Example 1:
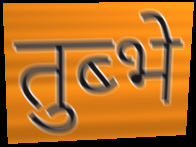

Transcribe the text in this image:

तुब्भे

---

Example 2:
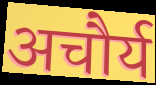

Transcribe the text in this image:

अचौर्य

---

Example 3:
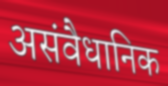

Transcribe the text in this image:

असंवैधानिक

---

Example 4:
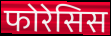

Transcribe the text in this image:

फोरेसिस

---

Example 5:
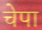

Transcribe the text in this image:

चेपा